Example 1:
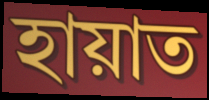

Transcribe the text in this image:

হায়াত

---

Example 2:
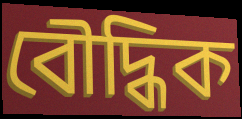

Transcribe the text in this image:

বৌদ্ধিক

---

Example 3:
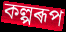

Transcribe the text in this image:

কল্পৰূপ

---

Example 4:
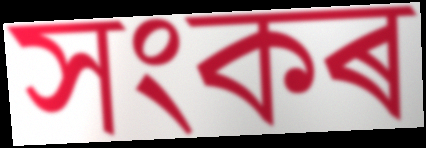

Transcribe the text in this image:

সংকৰ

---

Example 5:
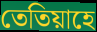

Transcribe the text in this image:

তেতিয়াহে